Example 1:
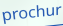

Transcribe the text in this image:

prochur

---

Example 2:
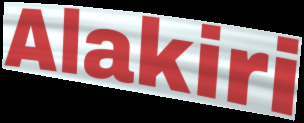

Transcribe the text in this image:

Alakiri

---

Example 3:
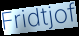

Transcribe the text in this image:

Fridtjof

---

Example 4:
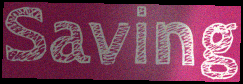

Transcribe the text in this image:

Saving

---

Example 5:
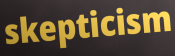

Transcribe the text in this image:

skepticism